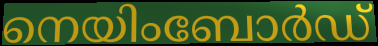
നെയിംബോർഡ്